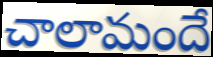
చాలామందే